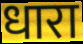
धारा